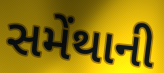
સમેંથાની